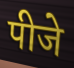
पीजे